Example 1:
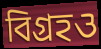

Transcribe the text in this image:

বিগ্রহও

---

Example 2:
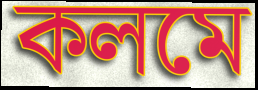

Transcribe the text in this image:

কলমে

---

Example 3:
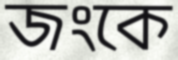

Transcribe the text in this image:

জংকে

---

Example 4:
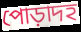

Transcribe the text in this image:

পোড়াদহ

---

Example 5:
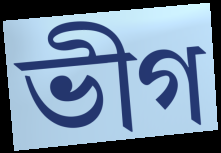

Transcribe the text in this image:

ভীগ